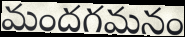
మందగమనం